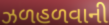
ઝળહળવાની